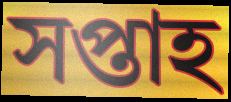
সপ্তাহ